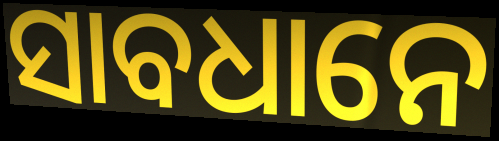
ସାବଧାନେ